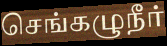
செங்கழுநீர்